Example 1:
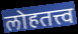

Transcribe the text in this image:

लोहतत्त्व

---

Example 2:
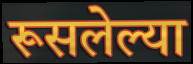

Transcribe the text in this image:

रूसलेल्या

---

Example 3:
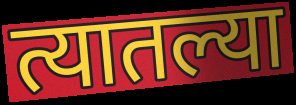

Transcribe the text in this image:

त्यातल्या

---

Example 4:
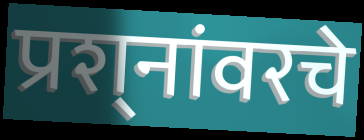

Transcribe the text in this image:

प्रश्नांवरचे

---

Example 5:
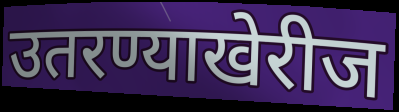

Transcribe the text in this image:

उतरण्याखेरीज